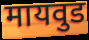
मायवुड